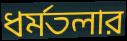
ধর্মতলার